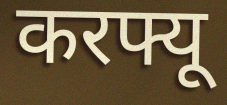
करफ्यू